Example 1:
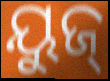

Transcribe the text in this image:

ୟୁଜ୍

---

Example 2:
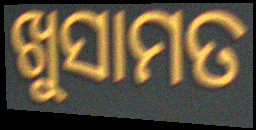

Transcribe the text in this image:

ଖୁସାମତ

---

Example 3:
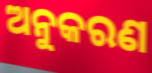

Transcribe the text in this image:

ଅନୁକରଣ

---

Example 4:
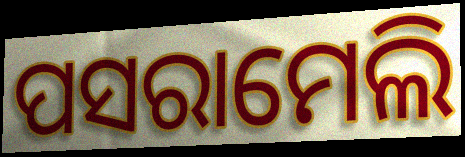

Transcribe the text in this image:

ପସରାମେଲି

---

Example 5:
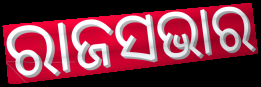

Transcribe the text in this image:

ରାଜସଭାର